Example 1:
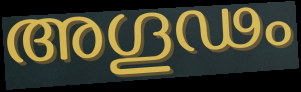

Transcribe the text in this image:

അഗൂഢം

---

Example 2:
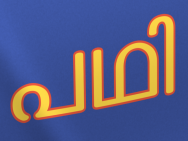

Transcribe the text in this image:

പഥി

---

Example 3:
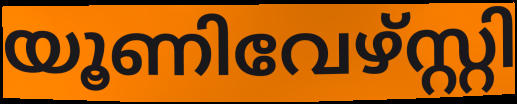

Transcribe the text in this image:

യൂണിവേഴ്സ്റ്റി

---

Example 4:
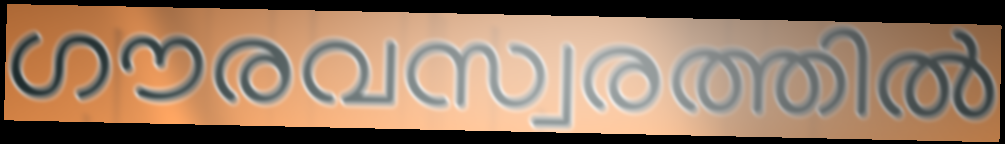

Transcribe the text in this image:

ഗൗരവസ്വരത്തിൽ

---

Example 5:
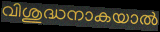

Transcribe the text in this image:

വിശുദ്ധനാകയാൽ